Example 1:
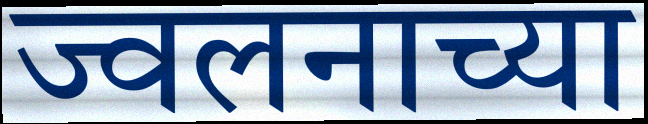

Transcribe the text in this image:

ज्वलनाच्या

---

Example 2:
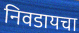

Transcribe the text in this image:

निवडायचा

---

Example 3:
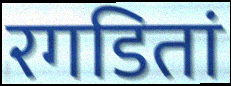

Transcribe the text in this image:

रगडितां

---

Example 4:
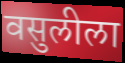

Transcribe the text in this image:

वसुलीला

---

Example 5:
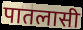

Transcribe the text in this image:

पातलासी